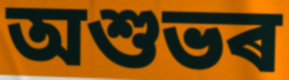
অশুভৰ